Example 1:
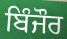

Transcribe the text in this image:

ਬਿੰਜੌਰ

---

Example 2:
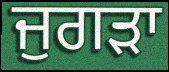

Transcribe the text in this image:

ਜੁਗੜਾ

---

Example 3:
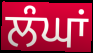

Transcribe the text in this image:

ਲੰਘਾਂ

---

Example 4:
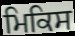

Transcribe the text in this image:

ਮਿਕਿਸ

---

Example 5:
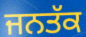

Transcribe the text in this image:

ਜਨਤੱਕ